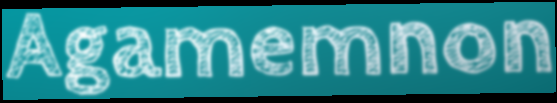
Agamemnon